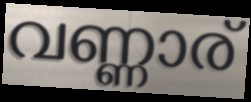
വണ്ണാര്